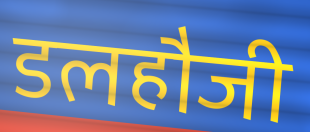
डलहौजी